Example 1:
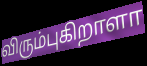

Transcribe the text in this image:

விரும்புகிறாளா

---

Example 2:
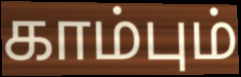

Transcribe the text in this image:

காம்பும்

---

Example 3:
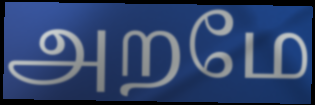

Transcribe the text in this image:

அறமே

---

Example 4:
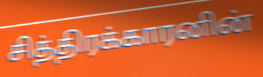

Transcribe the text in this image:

சித்திரக்காரனின்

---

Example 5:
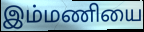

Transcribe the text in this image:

இம்மணியை